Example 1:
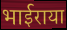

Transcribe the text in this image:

भाईराया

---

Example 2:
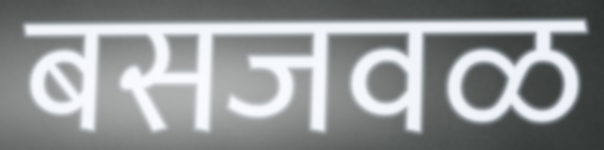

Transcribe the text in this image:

बसजवळ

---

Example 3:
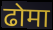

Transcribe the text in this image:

ढोमा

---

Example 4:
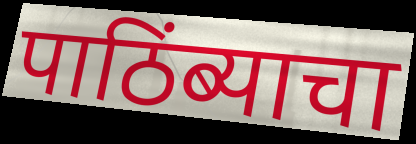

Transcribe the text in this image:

पाठिंब्याचा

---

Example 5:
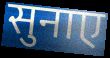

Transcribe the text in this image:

सुनाए